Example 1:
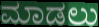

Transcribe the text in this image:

ಮಾಡಲು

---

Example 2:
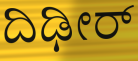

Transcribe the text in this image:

ದಿಢೀರ್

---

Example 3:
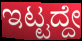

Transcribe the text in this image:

ಇಟ್ಟದ್ದೇ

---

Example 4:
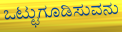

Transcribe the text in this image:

ಒಟ್ಟುಗೂಡಿಸುವನು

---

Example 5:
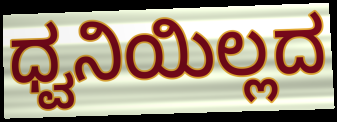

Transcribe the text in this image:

ಧ್ವನಿಯಿಲ್ಲದ